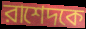
রাশেদকে